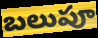
బలుపూ